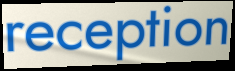
reception